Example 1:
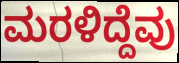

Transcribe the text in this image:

ಮರಳಿದ್ದೆವು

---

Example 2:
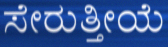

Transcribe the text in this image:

ಸೇರುತ್ತೀಯೆ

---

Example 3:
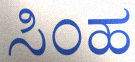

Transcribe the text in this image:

ಸಿಂಹ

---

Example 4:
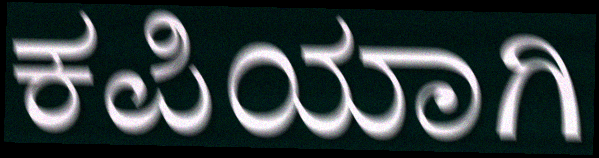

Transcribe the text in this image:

ಕಪಿಯಾಗಿ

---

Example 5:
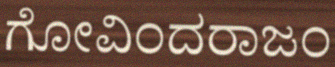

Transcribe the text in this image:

ಗೋವಿಂದರಾಜಂ